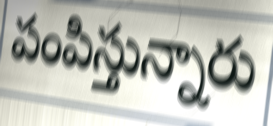
పంపిస్తున్నారు